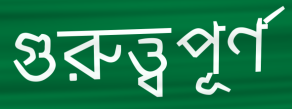
গুৰুত্ত্বপূৰ্ণ